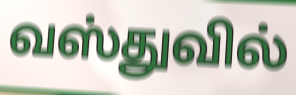
வஸ்துவில்